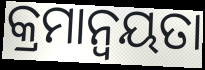
କ୍ରମାନ୍ବୟତା